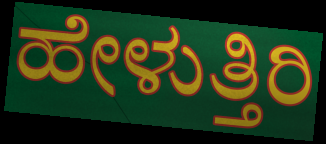
ಹೇಳುತ್ತಿರಿ